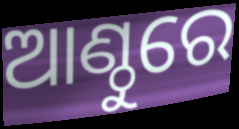
ଆଣ୍ଠୁରେ